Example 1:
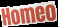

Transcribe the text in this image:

Homeo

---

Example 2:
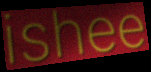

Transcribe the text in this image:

ishee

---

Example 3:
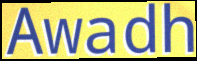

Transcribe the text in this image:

Awadh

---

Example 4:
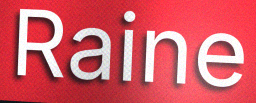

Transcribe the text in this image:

Raine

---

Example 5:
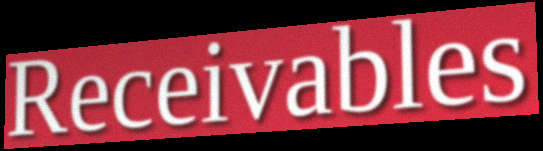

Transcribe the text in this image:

Receivables